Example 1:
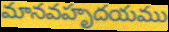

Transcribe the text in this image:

మానవహృదయము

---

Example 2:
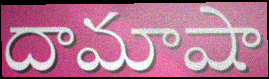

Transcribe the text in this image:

దామాషా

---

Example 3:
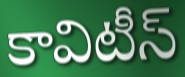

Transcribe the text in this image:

కావిటీస్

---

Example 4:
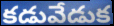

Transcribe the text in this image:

కడువేడుక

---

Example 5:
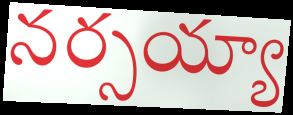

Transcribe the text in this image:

నర్సయ్యా